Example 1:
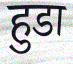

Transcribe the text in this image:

हुडा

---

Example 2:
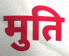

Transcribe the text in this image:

मुति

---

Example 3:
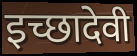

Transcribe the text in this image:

इच्छादेवी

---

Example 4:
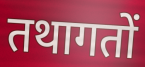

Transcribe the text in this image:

तथागतों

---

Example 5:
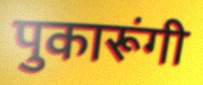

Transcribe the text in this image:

पुकारूंगी